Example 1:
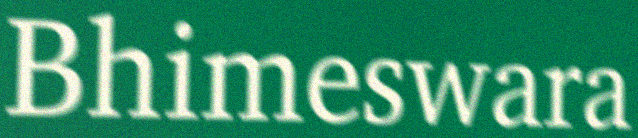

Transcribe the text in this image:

Bhimeswara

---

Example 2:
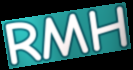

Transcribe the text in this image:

RMH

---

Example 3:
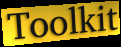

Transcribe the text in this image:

Toolkit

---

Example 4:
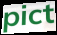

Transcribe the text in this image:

pict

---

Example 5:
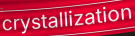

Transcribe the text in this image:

crystallization